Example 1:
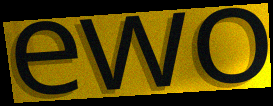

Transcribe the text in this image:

ewo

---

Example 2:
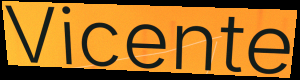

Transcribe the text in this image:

Vicente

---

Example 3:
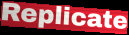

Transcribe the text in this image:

Replicate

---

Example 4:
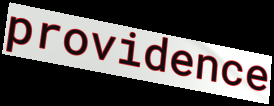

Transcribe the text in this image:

providence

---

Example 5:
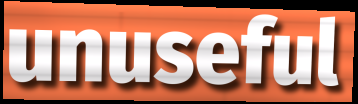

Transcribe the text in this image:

unuseful